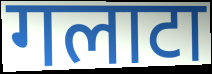
गलाटा